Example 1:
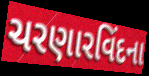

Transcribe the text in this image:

ચરણારવિંદના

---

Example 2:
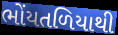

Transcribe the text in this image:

ભોંયતળિયાથી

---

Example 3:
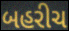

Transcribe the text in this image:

બહરીચ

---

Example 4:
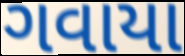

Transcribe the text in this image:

ગવાયા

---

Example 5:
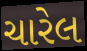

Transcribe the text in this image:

ચારેલ